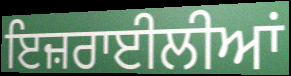
ਇਜ਼ਰਾਈਲੀਆਂ